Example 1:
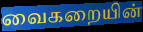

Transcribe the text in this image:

வைகறையின்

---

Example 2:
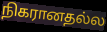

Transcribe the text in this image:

நிகரானதல்ல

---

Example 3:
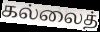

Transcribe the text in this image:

கல்லைத்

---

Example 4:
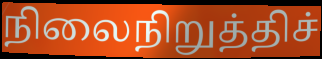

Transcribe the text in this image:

நிலைநிறுத்திச்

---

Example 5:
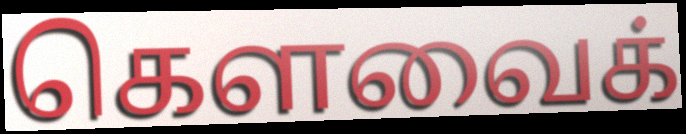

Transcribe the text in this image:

கௌவைக்